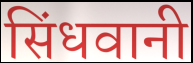
सिंधवानी